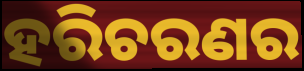
ହରିଚରଣର